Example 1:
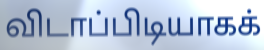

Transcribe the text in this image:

விடாப்பிடியாகக்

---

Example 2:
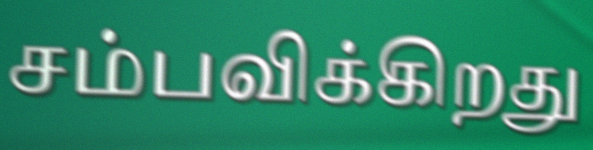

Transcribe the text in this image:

சம்பவிக்கிறது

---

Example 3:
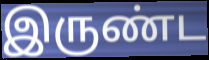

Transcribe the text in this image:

இருண்ட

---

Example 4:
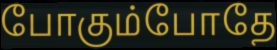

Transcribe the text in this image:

போகும்போதே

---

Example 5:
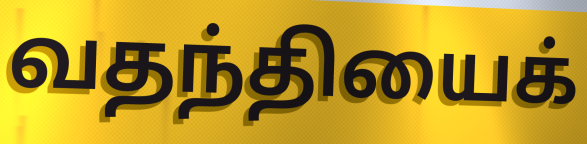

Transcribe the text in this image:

வதந்தியைக்